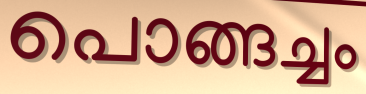
പൊങ്ങച്ചം